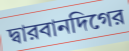
দ্বারবানদিগের